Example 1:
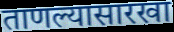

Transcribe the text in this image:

ताणल्यासारखा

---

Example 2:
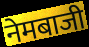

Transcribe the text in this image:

नेमबाजी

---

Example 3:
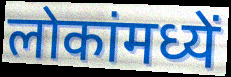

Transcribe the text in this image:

लोकांमध्यें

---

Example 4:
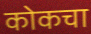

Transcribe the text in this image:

कोकचा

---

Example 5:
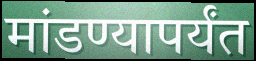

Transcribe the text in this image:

मांडण्यापर्यंत